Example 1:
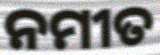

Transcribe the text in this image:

ନମୀତ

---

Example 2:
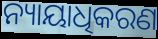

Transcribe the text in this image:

ନ୍ୟାୟାଧିକରଣ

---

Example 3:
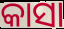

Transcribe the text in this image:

କାସା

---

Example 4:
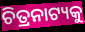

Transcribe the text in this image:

ଚିତ୍ରନାଟ୍ୟକୁ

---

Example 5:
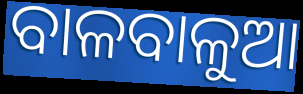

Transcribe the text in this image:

ବାଳବାଳୁଆ